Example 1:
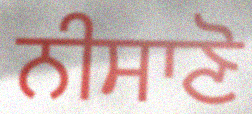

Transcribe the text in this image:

ਨੀਸਾਣੋ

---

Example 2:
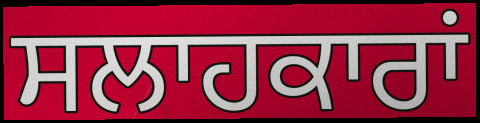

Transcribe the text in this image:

ਸਲਾਹਕਾਰਾਂ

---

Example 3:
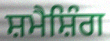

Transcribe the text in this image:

ਸ਼ਮੈਸ਼ਿੰਗ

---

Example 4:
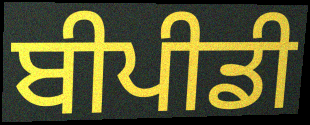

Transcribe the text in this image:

ਬੀਪੀਡੀ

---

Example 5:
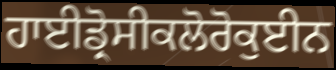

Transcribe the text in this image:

ਹਾਈਡ੍ਰੋਸੀਕਲੋਰੋਕੁਈਨ